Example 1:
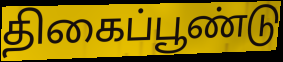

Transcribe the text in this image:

திகைப்பூண்டு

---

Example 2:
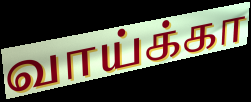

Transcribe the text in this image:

வாய்க்கா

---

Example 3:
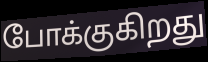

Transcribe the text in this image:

போக்குகிறது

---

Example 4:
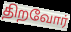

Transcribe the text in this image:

திறவோர்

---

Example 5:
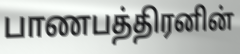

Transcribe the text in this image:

பாணபத்திரனின்